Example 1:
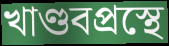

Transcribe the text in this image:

খাণ্ডবপ্রস্থে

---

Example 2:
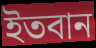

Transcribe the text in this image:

ইতবান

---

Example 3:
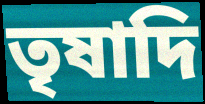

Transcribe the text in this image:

তৃষাদি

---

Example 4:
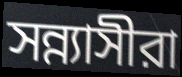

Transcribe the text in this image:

সন্ন্যাসীরা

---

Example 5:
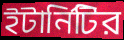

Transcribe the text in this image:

ইটার্নিটির